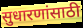
सुधारणांसाठी